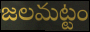
జలమట్టం